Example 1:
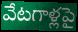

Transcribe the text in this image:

వేటగాళ్లపై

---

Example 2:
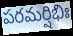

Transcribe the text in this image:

పరమర్షిభిః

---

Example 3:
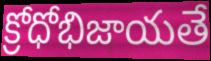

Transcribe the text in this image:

క్రోధోభిజాయతే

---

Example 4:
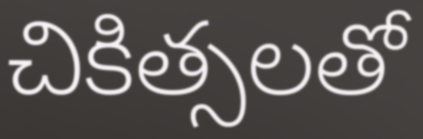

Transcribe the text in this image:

చికిత్సలతో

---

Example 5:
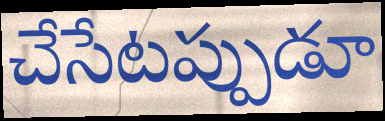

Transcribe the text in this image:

చేసేటప్పుడూ